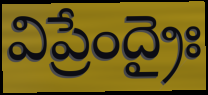
విప్రేంద్రైః